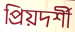
প্রিয়দর্শী